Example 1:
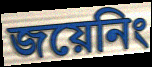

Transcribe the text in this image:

জয়েনিং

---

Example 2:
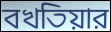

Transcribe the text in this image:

বখতিয়ার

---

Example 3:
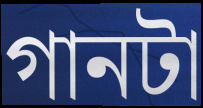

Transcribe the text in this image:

গানটা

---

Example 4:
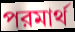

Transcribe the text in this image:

পরমার্থ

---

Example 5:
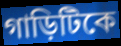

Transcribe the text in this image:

গাড়িটিকে